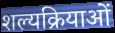
शल्यक्रियाओं